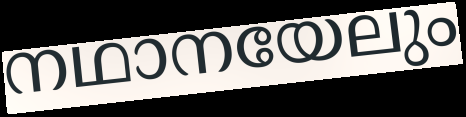
നഥാനയേലും